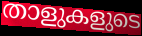
താളുകളുടെ